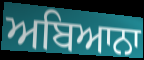
ਅਬਿਆਨਾ